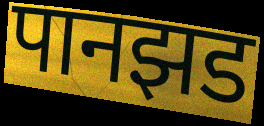
पानझड